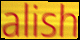
alish